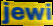
jewi